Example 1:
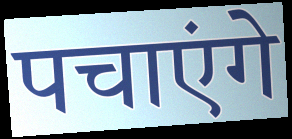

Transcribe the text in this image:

पचाएंगे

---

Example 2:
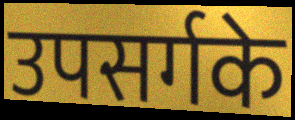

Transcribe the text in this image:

उपसर्गके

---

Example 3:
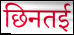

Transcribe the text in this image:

छिनतई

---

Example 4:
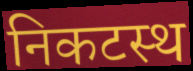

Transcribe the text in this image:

निकटस्थ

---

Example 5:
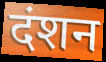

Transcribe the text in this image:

दंशन